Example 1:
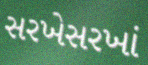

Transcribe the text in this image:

સરખેસરખાં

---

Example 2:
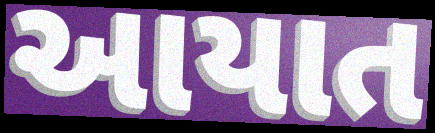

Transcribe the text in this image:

આયાત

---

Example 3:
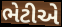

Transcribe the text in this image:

ભેટીએ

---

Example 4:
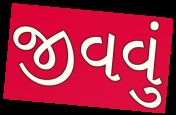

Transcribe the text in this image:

જીવવું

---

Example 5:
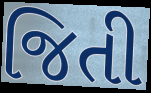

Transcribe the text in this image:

જિતી